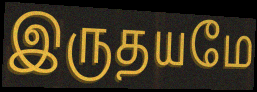
இருதயமே